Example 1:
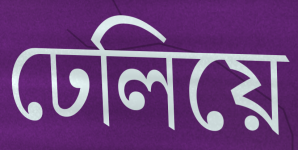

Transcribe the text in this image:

ঢেলিয়ে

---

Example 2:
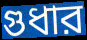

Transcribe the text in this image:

গুধার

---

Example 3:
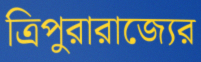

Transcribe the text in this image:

ত্রিপুরারাজ্যের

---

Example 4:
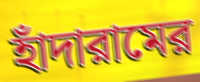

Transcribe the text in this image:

হাঁদারামের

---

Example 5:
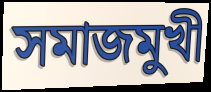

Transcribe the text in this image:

সমাজমুখী